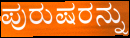
ಪುರುಷರನ್ನು